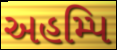
અહમ્પિ